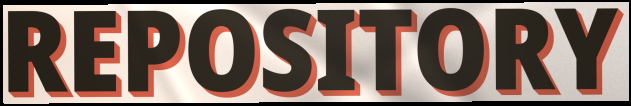
REPOSITORY